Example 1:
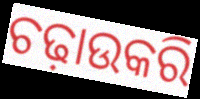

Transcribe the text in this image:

ଚଢ଼ାଉକରି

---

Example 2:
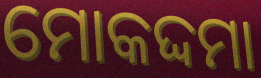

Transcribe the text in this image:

ମୋକଦ୍ଦମା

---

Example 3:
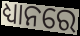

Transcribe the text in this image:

ଧ୍ୟାନରେ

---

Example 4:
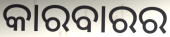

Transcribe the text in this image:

କାରବାରର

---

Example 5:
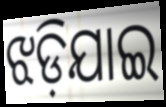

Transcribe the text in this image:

ଝଡ଼ିଯାଇ